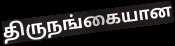
திருநங்கையான